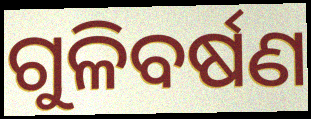
ଗୁଳିବର୍ଷଣ